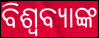
ବିଶ୍ୱବ୍ୟାଙ୍କ